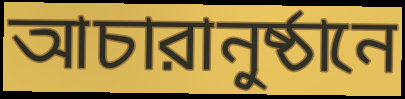
আচারানুষ্ঠানে